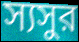
স্যসুর